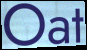
Oat